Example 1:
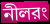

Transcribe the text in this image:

নীলরং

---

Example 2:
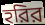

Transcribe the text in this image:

হরির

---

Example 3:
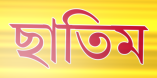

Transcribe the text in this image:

ছাতিম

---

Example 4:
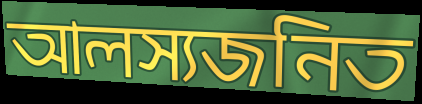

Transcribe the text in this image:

আলস্যজনিত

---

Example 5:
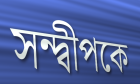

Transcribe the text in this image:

সন্দ্বীপকে